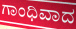
ಗಾಂಧಿವಾದ